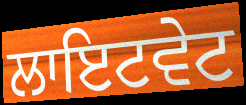
ਲਾਇਟਵੇਟ